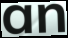
an